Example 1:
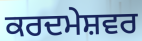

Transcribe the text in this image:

ਕਰਦਮੇਸ਼ਵਰ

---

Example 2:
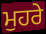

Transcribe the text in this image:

ਮੁਹਰੇ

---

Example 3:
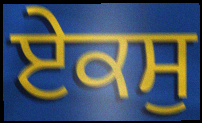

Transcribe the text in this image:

ਏਕਸੁ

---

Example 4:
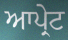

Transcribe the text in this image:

ਆਪ੍ਰੇਟ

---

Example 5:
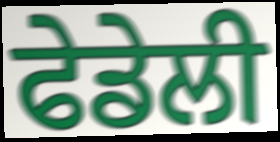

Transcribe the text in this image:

ਫੇਡੇਲੀ